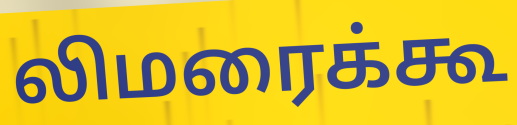
லிமரைக்கூ